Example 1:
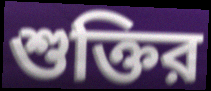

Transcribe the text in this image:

শুক্তির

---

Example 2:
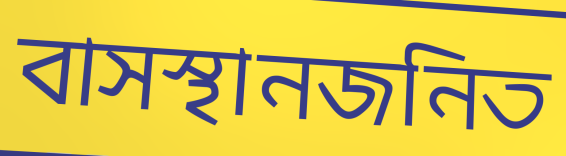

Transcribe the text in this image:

বাসস্থানজনিত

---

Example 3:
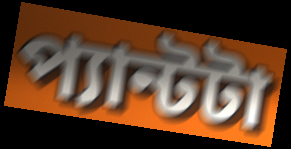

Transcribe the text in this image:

প্যান্টটা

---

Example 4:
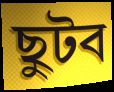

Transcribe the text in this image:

ছুটব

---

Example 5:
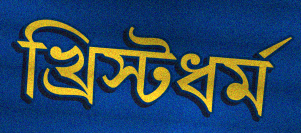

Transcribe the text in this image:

খ্রিস্টধর্ম